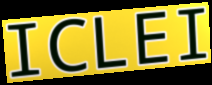
ICLEI